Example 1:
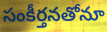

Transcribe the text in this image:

సంకీర్తనతోనూ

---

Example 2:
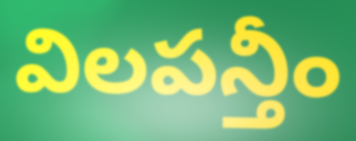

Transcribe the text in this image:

విలపన్తీం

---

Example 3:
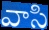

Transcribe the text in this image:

వాసి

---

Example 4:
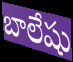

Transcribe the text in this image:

బాలేషు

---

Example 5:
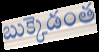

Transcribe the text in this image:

బుక్కెడంత